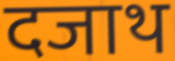
दजाथ